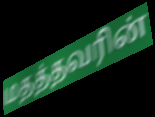
மதத்தவரின்